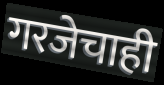
गरजेचाही